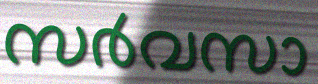
സർവസാ